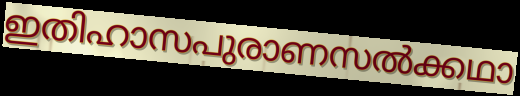
ഇതിഹാസപുരാണസൽക്കഥാ